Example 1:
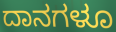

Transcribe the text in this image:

ದಾನಗಳೂ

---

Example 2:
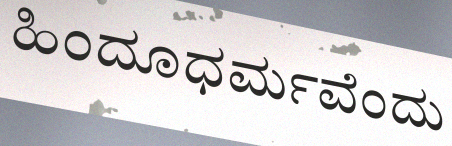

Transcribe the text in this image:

ಹಿಂದೂಧರ್ಮವೆಂದು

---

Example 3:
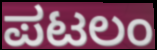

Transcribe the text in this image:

ಪಟಲಂ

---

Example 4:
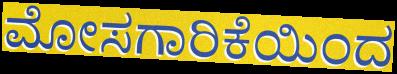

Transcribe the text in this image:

ಮೋಸಗಾರಿಕೆಯಿಂದ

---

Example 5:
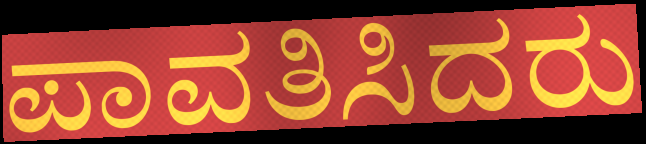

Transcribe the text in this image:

ಪಾವತಿಸಿದರು